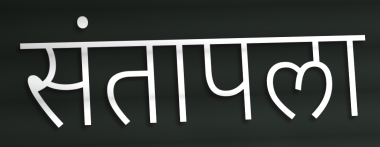
संतापला